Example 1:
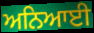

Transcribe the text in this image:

ਅਨਿਆਈ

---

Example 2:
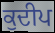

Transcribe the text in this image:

ਕੁਦੀਪ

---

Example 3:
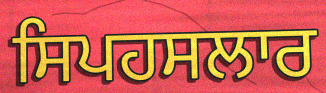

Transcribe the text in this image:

ਸਿਪਹਸਲਾਰ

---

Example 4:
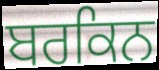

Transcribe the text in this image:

ਬਰਕਿਨ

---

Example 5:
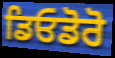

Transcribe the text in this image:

ਡਿਓਡੋਰੋ